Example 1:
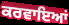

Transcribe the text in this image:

ਕਰਵਾਇਆਂ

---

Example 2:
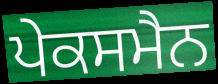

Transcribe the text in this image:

ਪੇਕਸਮੈਨ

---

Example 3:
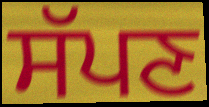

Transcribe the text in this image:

ਸੱਪਣ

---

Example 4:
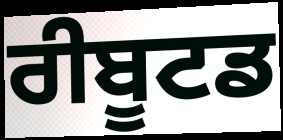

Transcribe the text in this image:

ਰੀਬੂਟਡ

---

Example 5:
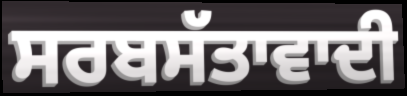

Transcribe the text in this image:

ਸਰਬਸੱਤਾਵਾਦੀ